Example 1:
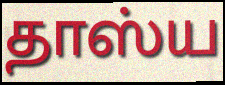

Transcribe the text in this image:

தாஸ்ய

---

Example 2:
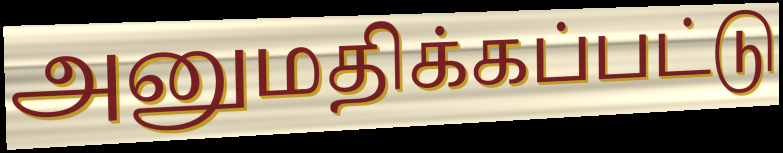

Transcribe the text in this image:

அனுமதிக்கப்பட்டு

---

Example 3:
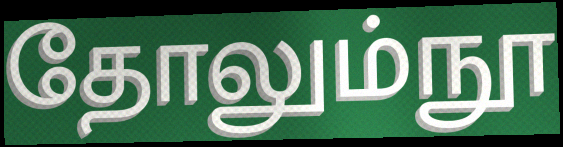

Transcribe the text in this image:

தோலும்நூ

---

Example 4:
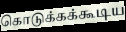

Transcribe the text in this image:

கொடுக்கக்கூடிய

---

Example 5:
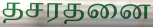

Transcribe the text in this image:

தசரதனை